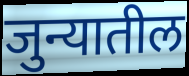
जुन्यातील